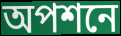
অপশনে